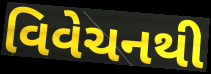
વિવેચનથી